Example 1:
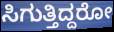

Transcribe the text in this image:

ಸಿಗುತ್ತಿದ್ದರೋ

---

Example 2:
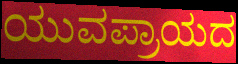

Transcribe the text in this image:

ಯುವಪ್ರಾಯದ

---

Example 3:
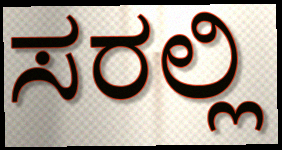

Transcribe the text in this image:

ಸರಲ್ಲಿ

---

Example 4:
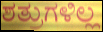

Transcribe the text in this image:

ಶತ್ರುಗಳಿಲ್ಲ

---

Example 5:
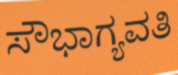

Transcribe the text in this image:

ಸೌಭಾಗ್ಯವತಿ